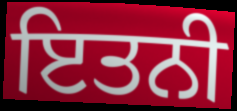
ਇਤਨੀ